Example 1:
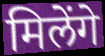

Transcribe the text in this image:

मिलेंगे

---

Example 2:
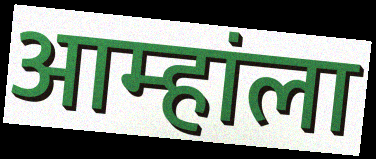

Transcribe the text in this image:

आम्हांला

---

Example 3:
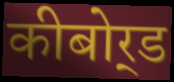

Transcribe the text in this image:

कीबोर्ड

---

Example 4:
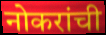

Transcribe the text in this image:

नोकरांची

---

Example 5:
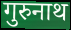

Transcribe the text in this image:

गुरुनाथ